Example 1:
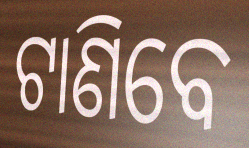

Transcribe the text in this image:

ଟାଣିବେ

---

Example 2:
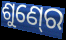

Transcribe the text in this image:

ଶୁଣ୍‍ରେ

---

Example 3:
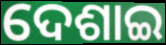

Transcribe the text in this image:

ଦେଶାଇ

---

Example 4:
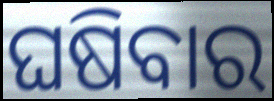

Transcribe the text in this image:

ଘଷିବାର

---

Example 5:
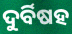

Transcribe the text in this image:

ଦୁର୍ବିଷହ